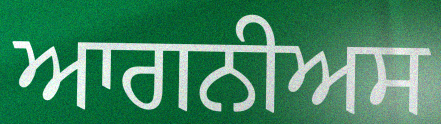
ਆਗਨੀਅਸ